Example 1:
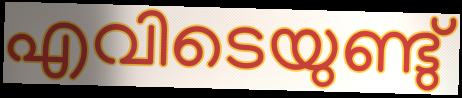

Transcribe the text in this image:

എവിടെയുണ്ടു്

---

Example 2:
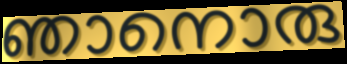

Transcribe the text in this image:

ഞാനൊരു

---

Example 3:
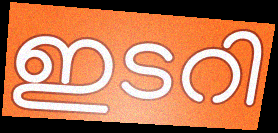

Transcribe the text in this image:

ഇടറി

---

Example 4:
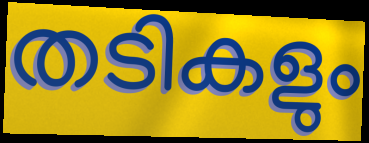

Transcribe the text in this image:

തടികളും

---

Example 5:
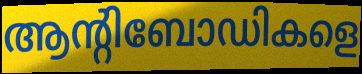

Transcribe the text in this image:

ആന്റിബോഡികളെ